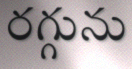
రగ్గును